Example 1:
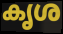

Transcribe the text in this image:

കൃശ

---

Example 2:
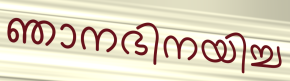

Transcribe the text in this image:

ഞാനഭിനയിച്ച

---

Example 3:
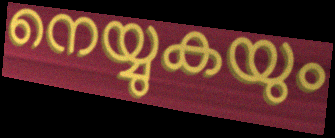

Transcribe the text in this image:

നെയ്യുകയും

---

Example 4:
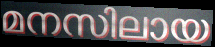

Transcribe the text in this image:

മനസിലായ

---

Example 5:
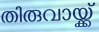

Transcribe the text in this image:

തിരുവായ്ക്ക്